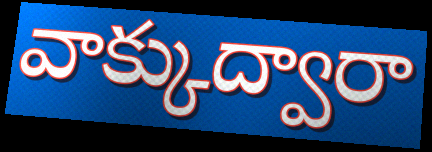
వాక్కుద్వారా